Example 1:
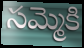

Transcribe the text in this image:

సమ్మెకి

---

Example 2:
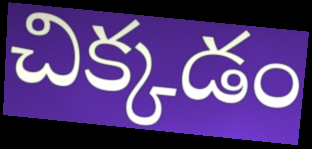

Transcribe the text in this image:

చిక్కడం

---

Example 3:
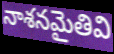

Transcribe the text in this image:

నాశనమైతివి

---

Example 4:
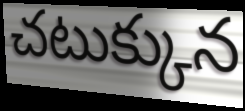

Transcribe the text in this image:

చటుక్కున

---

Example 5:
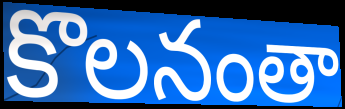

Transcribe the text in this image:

కొలనంతా